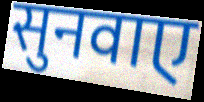
सुनवाए